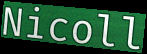
Nicoll